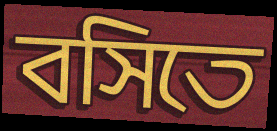
বসিতে